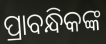
ପ୍ରାବନ୍ଧିକଙ୍କ